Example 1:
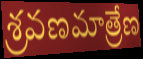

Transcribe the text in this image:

శ్రవణమాత్రేణ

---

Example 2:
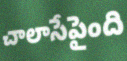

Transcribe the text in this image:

చాలాసేపైంది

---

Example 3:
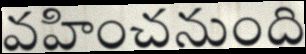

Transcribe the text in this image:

వహించనుంది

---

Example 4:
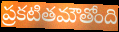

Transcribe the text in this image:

ప్రకటితమౌతోంది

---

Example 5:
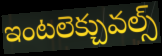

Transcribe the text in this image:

ఇంటలెక్చువల్స్